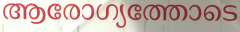
ആരോഗ്യത്തോടെ